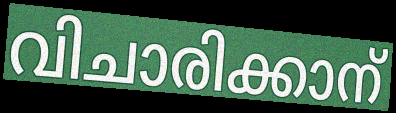
വിചാരിക്കാന്